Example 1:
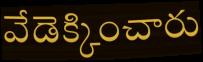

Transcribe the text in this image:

వేడెక్కించారు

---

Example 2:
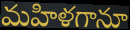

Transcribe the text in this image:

మహిళగానూ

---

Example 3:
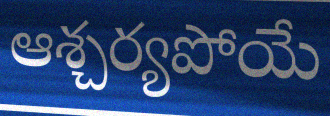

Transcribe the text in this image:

ఆశ్చర్యపోయే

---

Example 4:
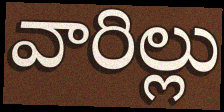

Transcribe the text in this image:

వారిల్లు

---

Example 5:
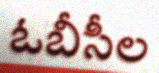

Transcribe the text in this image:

ఓబీసీల